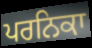
ਪਰਨਿਕਾ